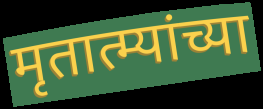
मृतात्म्यांच्या